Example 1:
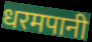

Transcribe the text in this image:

धरमपानी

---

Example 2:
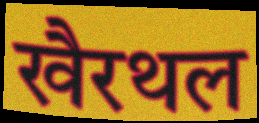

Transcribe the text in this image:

खैरथल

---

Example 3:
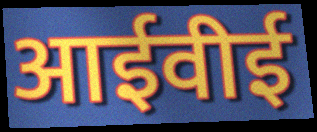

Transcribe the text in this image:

आईवीई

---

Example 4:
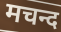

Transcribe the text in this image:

मचन्द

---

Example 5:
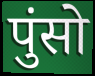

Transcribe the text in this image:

पुंसो